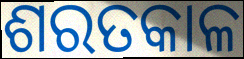
ଶରତକାଳ